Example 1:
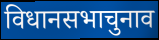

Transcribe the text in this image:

विधानसभाचुनाव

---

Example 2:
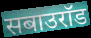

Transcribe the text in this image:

सबाउरॉड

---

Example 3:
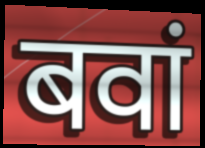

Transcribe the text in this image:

बवां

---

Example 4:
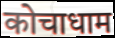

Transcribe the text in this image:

कोचाधाम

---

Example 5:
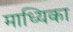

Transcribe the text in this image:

माध्यिका